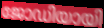
ജോഡിയായി